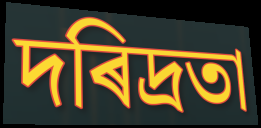
দৰিদ্ৰতা